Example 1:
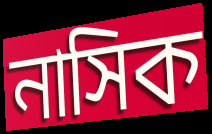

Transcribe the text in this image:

নাসিক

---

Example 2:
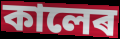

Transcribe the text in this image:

কালেৰ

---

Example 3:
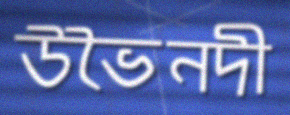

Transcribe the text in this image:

উভৈনদী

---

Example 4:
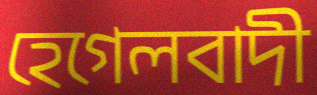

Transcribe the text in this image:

হেগেলবাদী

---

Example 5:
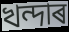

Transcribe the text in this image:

খন্দাৰ